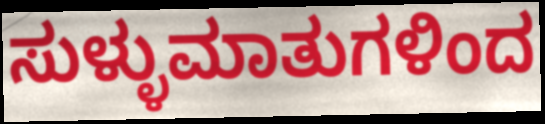
ಸುಳ್ಳುಮಾತುಗಳಿಂದ